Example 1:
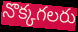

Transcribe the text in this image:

నొక్కగలరు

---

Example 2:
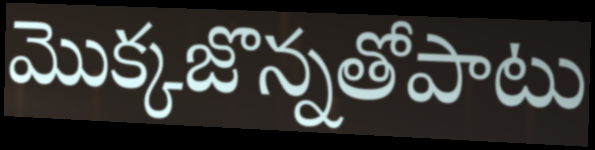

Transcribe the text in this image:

మొక్కజొన్నతోపాటు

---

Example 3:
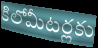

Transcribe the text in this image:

కిలోమీటర్లకు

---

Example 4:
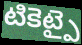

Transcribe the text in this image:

టికెట్పై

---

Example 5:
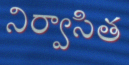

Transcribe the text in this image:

నిర్వాసిత